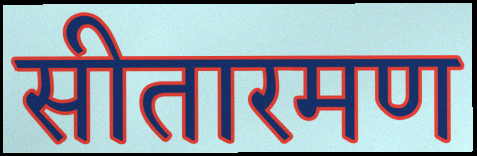
सीतारमण